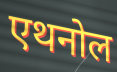
एथनोल